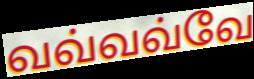
வவ்வவ்வே